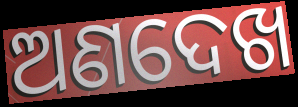
ଅଣଦେଖ